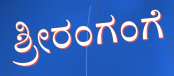
ಶ್ರೀರಂಗಂಗೆ